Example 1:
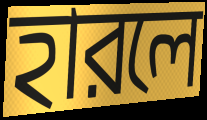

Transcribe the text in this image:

হারলে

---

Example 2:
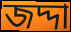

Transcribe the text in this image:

জদ্দা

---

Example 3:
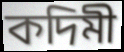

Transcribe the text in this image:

কদিমী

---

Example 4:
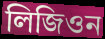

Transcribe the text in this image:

লিজিওন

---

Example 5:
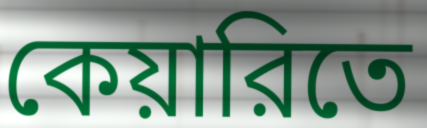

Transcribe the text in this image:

কেয়ারিতে